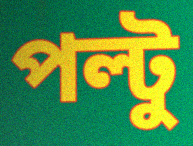
পল্টু